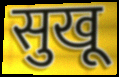
सुखू